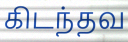
கிடந்தவ